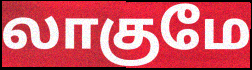
லாகுமே